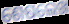
ଶେଷଲେଖ